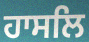
ਹਾਸਲਿ